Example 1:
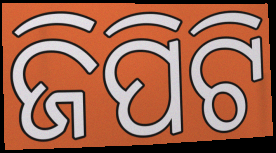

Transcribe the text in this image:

ଜିପିଟି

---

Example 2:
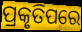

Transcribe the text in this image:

ପ୍ରକୃତିପରେ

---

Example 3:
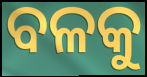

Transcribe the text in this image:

ବଳକୁ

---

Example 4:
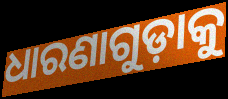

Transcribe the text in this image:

ଧାରଣାଗୁଡ଼ାକୁ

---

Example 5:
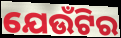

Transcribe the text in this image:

ଯେଉଁଟିର